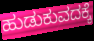
ಹುಡುಕುವದಕ್ಕೆ